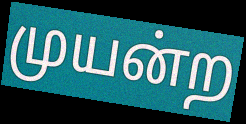
முயன்ற